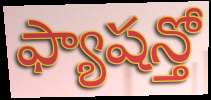
ఫ్యాషన్తో